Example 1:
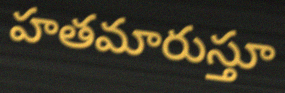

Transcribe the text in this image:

హతమారుస్తూ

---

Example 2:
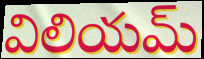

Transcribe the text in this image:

విలియమ్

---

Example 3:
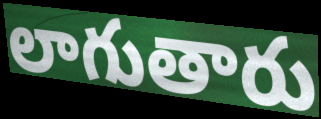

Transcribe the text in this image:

లాగుతారు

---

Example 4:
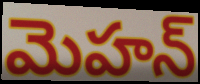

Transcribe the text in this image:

మెహన్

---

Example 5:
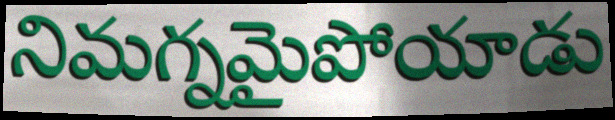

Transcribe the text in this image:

నిమగ్నమైపోయాడు